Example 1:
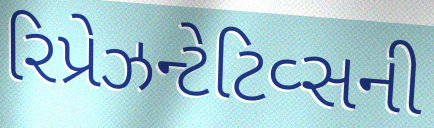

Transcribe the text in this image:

રિપ્રેઝન્ટેટિવ્સની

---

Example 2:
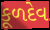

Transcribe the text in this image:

કૂળદેવ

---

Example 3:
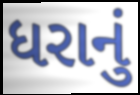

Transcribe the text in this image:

ધરાનું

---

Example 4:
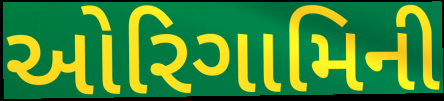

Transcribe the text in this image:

ઓરિગામિની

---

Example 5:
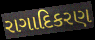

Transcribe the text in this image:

રાગાદિકરણ